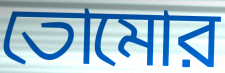
তোমোর